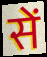
सें